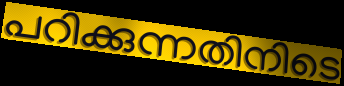
പറിക്കുന്നതിനിടെ